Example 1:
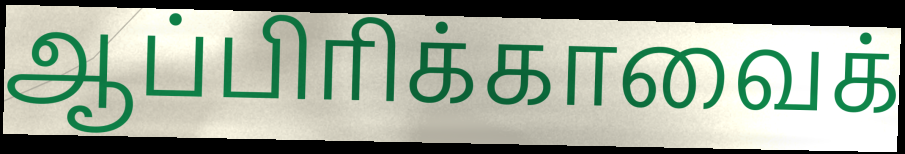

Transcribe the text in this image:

ஆப்பிரிக்காவைக்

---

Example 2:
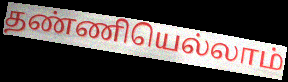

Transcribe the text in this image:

தண்ணியெல்லாம்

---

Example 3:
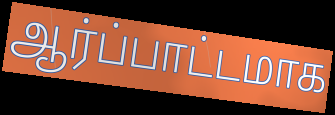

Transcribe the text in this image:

ஆர்ப்பாட்டமாக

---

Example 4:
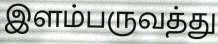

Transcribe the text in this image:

இளம்பருவத்து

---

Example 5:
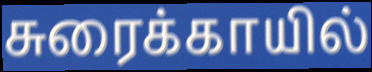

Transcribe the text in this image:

சுரைக்காயில்